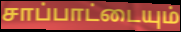
சாப்பாட்டையும்